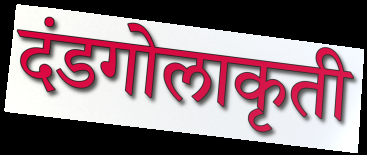
दंडगोलाकृती